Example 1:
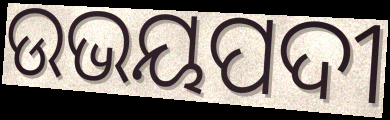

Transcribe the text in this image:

ଉଭୟପଦୀ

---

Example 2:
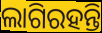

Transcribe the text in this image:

ଲାଗିରହନ୍ତି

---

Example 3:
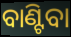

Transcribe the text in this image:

ବାଣ୍ଟିବା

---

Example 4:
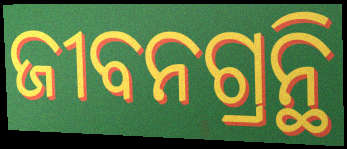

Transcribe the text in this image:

ଜୀବନଗ୍ରନ୍ଥି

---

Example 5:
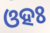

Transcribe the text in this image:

ଓହଃ